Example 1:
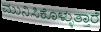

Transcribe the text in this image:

ಮುನಿಸಿಕೊಳ್ಳುತ್ತಾರೆ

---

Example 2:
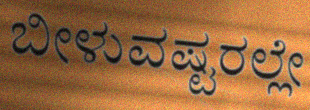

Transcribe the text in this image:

ಬೀಳುವಷ್ಟರಲ್ಲೇ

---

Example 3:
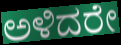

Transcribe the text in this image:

ಅಳಿದರೇ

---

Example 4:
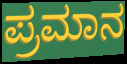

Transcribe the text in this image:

ಪ್ರಮಾನ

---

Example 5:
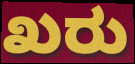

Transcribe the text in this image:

ಖರು